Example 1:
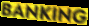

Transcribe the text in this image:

BANKING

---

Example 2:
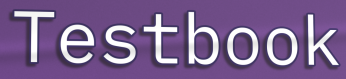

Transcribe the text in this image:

Testbook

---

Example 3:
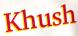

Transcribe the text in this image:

Khush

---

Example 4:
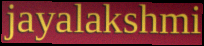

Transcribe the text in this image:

jayalakshmi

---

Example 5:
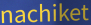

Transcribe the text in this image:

nachiket